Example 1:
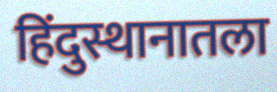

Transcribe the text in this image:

हिंदुस्थानातला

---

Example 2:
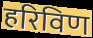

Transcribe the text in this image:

हरिविण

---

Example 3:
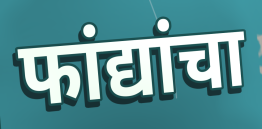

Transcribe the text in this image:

फांद्यांचा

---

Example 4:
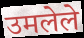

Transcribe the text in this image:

उमलेले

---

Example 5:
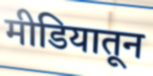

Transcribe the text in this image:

मीडियातून